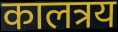
कालत्रय